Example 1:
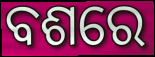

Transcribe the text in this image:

ବଶରେ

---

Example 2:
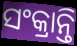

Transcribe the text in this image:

ସଂକ୍ରାନ୍ତି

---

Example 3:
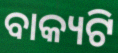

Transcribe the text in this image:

ବାକ୍ୟଟି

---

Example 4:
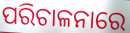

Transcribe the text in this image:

ପରିଚାଳନାରେ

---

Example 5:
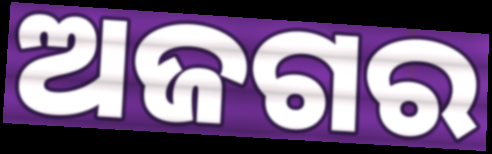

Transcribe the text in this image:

ଅଜଗର